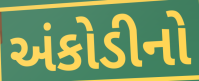
અંકોડીનો